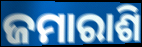
ଜମାରାଶି